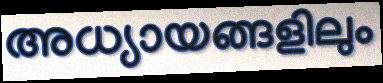
അധ്യായങ്ങളിലും